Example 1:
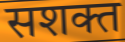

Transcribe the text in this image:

सशक्त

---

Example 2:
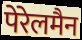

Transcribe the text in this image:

पेरेलमैन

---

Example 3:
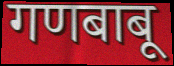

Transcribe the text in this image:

गणबाबू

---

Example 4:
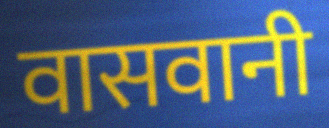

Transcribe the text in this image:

वासवानी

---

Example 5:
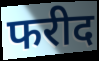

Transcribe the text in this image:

फरीद